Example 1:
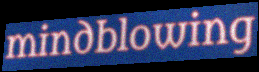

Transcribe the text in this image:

mindblowing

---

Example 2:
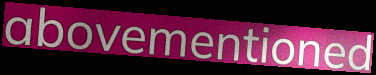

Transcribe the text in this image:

abovementioned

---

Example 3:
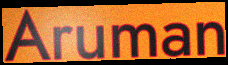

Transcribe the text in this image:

Aruman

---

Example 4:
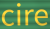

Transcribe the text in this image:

cire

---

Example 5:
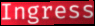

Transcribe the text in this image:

Ingress